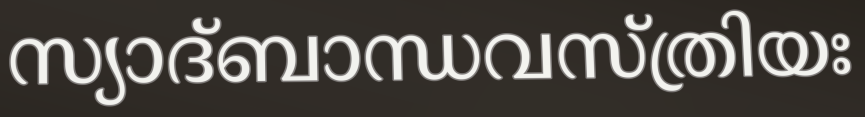
സ്യാദ്ബാന്ധവസ്ത്രിയഃ